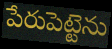
పేరుపెట్టెను